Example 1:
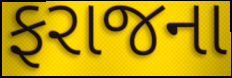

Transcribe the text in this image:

ફરાજના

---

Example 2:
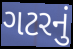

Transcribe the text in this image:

ગટરનું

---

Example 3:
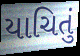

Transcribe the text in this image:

યાચિતું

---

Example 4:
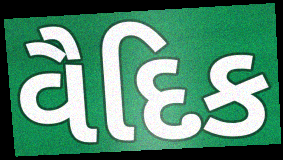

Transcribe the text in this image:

વૈદિક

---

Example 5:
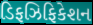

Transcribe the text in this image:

ડિફઝિફિકેશન